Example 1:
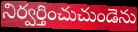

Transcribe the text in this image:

నిర్వర్తించుచుండెను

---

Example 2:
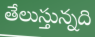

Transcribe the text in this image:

తేలుస్తున్నది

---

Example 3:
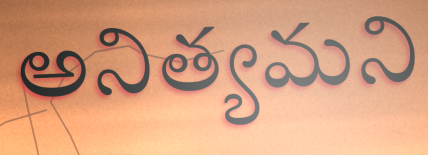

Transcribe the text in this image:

అనిత్యమని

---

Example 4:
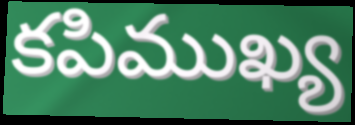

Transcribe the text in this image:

కపిముఖ్య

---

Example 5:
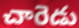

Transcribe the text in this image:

చారెడు